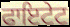
ਫਾਇਟੇਟ